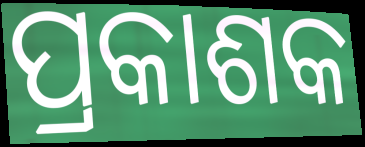
ପ୍ରକାଶକ